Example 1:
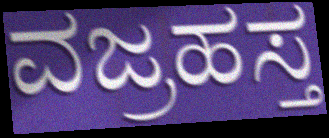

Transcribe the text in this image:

ವಜ್ರಹಸ್ತ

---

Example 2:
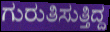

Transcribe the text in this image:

ಗುರುತಿಸುತ್ತಿದ್ದ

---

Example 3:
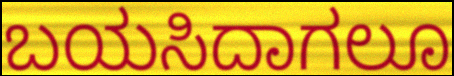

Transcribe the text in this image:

ಬಯಸಿದಾಗಲೂ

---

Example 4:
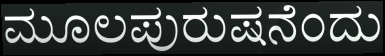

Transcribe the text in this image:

ಮೂಲಪುರುಷನೆಂದು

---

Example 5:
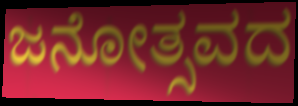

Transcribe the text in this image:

ಜನೋತ್ಸವದ